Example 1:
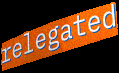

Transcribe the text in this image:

relegated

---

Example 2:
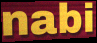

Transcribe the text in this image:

nabi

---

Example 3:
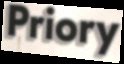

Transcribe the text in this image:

Priory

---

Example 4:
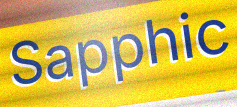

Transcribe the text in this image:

Sapphic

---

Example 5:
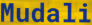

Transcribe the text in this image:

Mudali